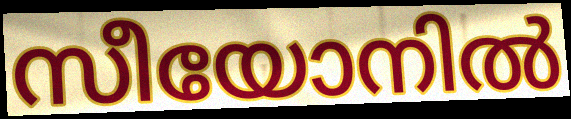
സീയോനിൽ